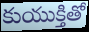
కుయుక్తితో